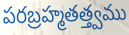
పరబ్రహ్మతత్త్వము